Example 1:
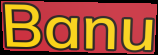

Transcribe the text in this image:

Banu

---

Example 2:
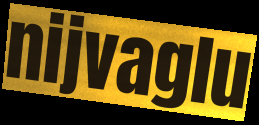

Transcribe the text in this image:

nijvaglu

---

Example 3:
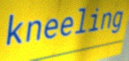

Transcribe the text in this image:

kneeling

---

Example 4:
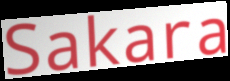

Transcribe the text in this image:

Sakara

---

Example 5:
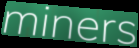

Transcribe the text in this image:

miners